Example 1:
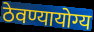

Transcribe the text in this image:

ठेवण्यायोग्य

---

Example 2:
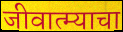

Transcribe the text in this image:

जीवात्म्याचा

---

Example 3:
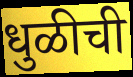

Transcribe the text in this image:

धुळीची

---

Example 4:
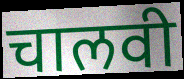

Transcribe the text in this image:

चालवी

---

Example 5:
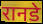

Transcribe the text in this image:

रानडे